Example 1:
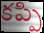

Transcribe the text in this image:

కప్పి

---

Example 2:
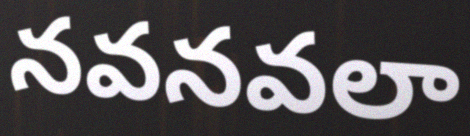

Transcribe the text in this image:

నవనవలా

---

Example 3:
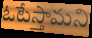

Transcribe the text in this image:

ఓటేస్తామని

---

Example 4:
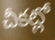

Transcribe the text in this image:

చీకట్లో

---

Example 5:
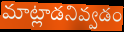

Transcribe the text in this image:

మాట్లాడనివ్వడం